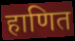
हाणित